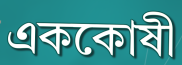
এককোষী